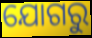
ଯୋଗରୁ